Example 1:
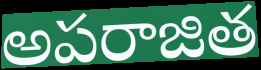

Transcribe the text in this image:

అపరాజిత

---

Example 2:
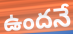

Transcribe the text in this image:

ఉందనే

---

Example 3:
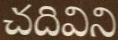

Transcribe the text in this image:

చదివిని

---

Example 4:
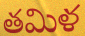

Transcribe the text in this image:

తమిళ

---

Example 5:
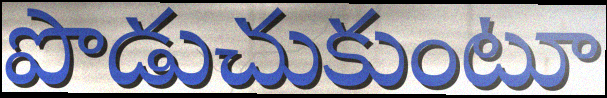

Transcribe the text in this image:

పొడుచుకుంటూ